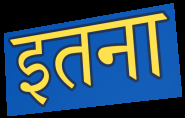
इतना